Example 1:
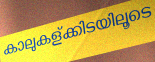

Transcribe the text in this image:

കാലുകള്ക്കിടയിലൂടെ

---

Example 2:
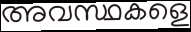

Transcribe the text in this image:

അവസ്ഥകളെ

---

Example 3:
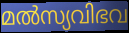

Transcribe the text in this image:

മൽസ്യവിഭവ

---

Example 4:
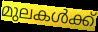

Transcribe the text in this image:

മുലകൾക്ക്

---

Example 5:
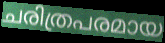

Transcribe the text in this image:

ചരിത്രപരമായ